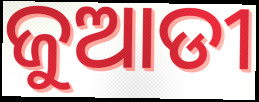
ଜୁଆଡୀ